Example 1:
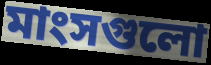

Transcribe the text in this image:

মাংসগুলো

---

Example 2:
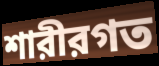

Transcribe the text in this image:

শারীরগত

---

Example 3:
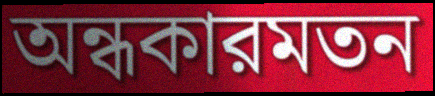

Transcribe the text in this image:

অন্ধকারমতন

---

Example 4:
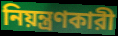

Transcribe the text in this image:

নিয়ন্ত্রণকারী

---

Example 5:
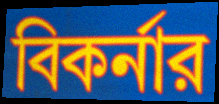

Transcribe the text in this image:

বিকর্নার